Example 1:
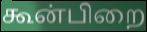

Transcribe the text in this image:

கூன்பிறை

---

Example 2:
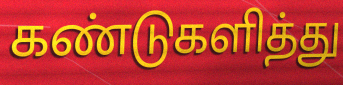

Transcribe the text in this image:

கண்டுகளித்து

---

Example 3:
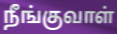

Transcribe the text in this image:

நீங்குவாள்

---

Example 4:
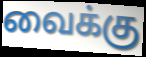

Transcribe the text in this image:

வைக்கு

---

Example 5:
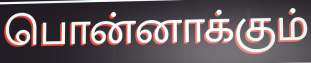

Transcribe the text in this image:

பொன்னாக்கும்